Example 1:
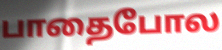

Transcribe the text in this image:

பாதைபோல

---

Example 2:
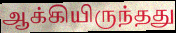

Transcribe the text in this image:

ஆக்கியிருந்தது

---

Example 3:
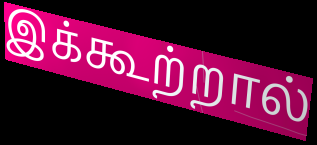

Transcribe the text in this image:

இக்கூற்றால்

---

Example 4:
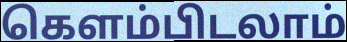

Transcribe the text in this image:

கெளம்பிடலாம்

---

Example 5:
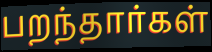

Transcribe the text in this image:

பறந்தார்கள்